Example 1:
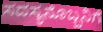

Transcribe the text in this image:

ಸದಸ್ಯನೊಬ್ಬನಿಗೆ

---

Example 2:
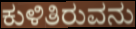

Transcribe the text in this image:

ಕುಳಿತಿರುವನು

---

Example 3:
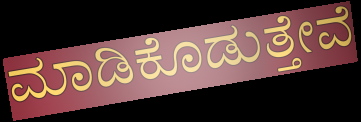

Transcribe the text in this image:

ಮಾಡಿಕೊಡುತ್ತೇವೆ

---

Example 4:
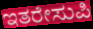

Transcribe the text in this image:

ಇತರೇಸುಪಿ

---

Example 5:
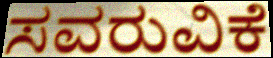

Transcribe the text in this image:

ಸವರುವಿಕೆ